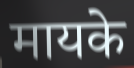
मायके